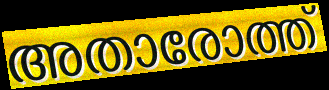
അതാരോത്ത്